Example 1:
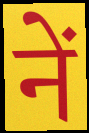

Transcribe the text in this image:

नें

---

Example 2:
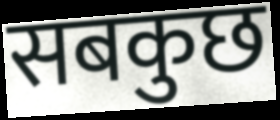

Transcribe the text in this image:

सबकुछ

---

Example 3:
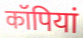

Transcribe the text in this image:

कॉपियां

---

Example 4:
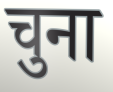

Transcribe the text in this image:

चुना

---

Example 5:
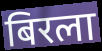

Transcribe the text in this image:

बिरला